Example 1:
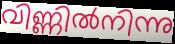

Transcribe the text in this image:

വിണ്ണിൽനിന്നു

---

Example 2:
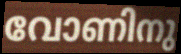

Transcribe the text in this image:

വോണിനു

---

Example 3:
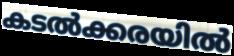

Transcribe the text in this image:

കടൽക്കരയിൽ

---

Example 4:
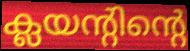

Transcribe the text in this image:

ക്ലയന്റിന്റെ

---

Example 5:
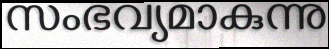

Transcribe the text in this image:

സംഭവ്യമാകുന്നു